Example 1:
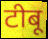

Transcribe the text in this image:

टीबू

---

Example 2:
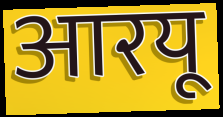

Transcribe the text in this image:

आरयू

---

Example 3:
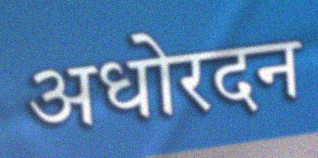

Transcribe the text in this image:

अधोरदन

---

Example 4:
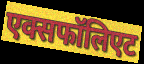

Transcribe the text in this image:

एक्सफॉलिएट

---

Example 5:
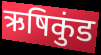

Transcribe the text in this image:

ऋषिकुंड